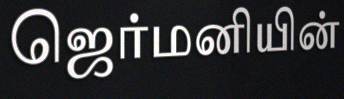
ஜெர்மனியின்